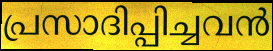
പ്രസാദിപ്പിച്ചവൻ